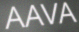
AAVA